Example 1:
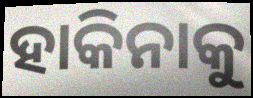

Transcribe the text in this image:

ହାକିନାକୁ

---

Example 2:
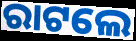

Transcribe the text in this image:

ରାଟଲେ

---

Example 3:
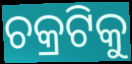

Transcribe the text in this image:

ଚକ୍ରଟିକୁ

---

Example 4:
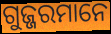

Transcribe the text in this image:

ଗୁଜ୍ଜରମାନେ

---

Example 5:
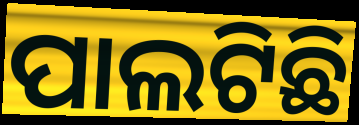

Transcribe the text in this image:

ପାଲଟିଛି